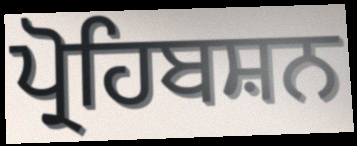
ਪ੍ਰੋਹਿਬਸ਼ਨ